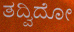
ತದ್ವಿದೋ